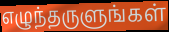
எழுந்தருளுங்கள்